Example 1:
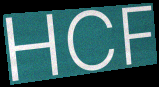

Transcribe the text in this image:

HCF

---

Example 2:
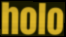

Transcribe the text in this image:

holo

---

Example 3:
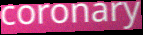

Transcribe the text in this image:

coronary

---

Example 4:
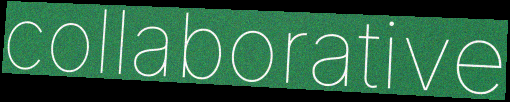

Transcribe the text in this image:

collaborative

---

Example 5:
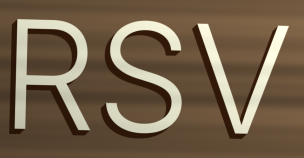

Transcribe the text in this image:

RSV